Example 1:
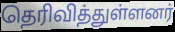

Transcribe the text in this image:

தெரிவித்துள்ளனர்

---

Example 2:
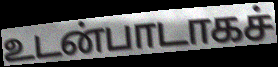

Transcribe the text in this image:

உடன்பாடாகச்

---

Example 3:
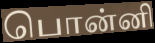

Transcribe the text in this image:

பொன்னி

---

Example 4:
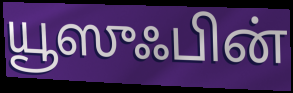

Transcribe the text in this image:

யூஸுஃபின்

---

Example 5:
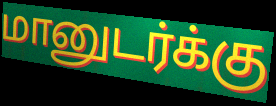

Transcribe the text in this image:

மானுடர்க்கு